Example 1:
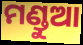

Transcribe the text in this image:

ମଣ୍ଡୁଆ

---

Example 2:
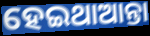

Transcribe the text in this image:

ହେଇଥାଆନ୍ତା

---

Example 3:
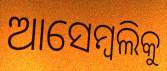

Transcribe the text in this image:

ଆସେମ୍ବଲିକୁ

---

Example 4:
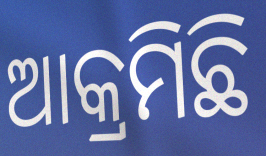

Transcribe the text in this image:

ଆକ୍ରମିଛି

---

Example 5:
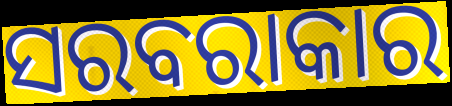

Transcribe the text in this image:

ସରବରାକାର